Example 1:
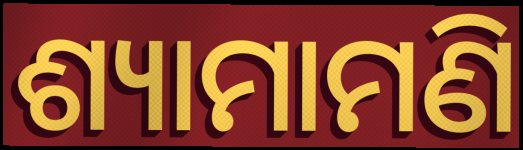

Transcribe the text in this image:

ଶ୍ୟାମାମଣି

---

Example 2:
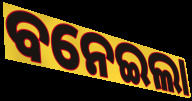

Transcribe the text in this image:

ବନେଇଲା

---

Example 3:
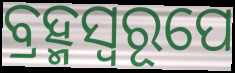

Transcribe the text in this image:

ବ୍ରହ୍ମସ୍ୱରୂପେ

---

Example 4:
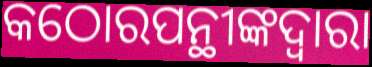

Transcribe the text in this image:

କଠୋରପନ୍ଥୀଙ୍କଦ୍ୱାରା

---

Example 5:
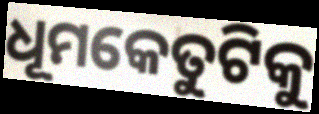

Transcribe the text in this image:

ଧୂମକେତୁଟିକୁ